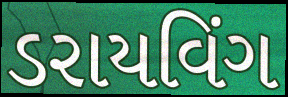
ડરાયવિંગ